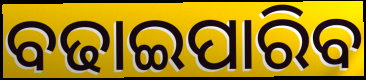
ବଢାଇପାରିବ